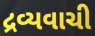
દ્રવ્યવાચી